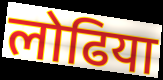
लोढिया